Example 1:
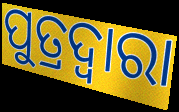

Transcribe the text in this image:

ପୁତ୍ରଦ୍ୱାରା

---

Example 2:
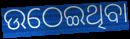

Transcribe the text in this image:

ଉଠେଇଥିବା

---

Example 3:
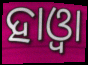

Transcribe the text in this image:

ହାଓ୍ୱା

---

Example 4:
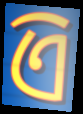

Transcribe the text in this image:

ଏି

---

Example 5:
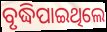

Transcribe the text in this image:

ବୃଦ୍ଧିପାଇଥିଲେ